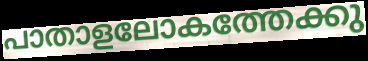
പാതാളലോകത്തേക്കു